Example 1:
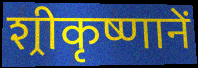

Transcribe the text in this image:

श्रीकृष्णानें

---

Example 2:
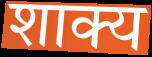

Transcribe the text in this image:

शाक्य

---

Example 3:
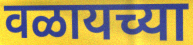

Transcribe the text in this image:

वळायच्या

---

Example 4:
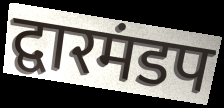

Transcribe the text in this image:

द्वारमंडप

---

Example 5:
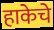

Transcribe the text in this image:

हाकेचे